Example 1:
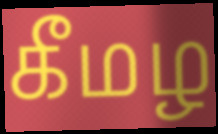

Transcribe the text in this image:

கீமழ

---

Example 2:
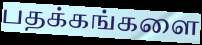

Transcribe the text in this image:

பதக்கங்களை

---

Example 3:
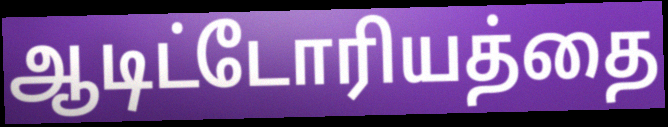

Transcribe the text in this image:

ஆடிட்டோரியத்தை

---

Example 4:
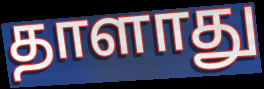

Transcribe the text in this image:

தாளாது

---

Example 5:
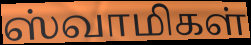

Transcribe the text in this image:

ஸ்வாமிகள்